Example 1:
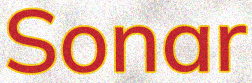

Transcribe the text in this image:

Sonar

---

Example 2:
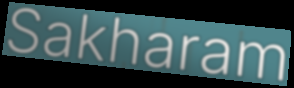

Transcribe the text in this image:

Sakharam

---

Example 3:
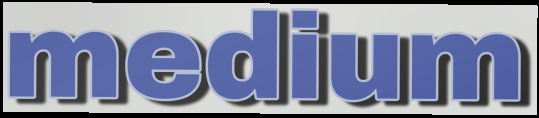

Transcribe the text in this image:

medium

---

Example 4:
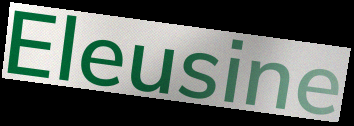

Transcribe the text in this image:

Eleusine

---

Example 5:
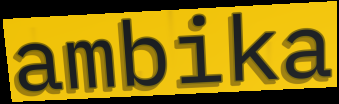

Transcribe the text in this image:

ambika